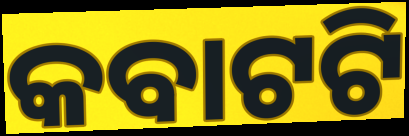
କବାଟଟି